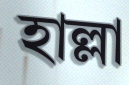
হাল্লা